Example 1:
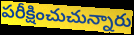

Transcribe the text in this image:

పరీక్షించుచున్నారు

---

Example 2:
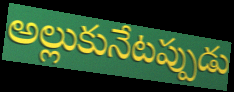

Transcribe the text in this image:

అల్లుకునేటప్పుడు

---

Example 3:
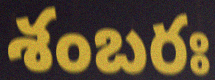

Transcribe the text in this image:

శంబరః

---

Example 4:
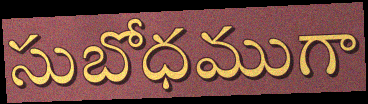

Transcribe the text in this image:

సుబోధముగా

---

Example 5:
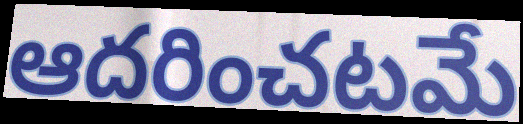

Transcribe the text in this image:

ఆదరించటమే